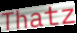
Thatz